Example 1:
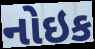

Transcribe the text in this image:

નોઇક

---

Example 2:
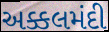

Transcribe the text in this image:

અક્કલમંદી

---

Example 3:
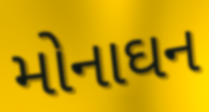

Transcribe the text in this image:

મોનાઘન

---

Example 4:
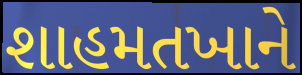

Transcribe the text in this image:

શાહમતખાને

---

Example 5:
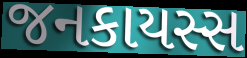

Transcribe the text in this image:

જનકાયસ્સ